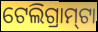
ଟେଲିଗ୍ରାମ୍‍ଟା